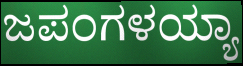
ಜಪಂಗಳಯ್ಯಾ